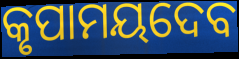
କୃପାମୟଦେବ